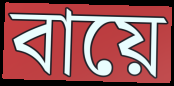
বায়ে